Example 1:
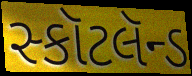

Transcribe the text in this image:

સ્કૉટલૅન્ડ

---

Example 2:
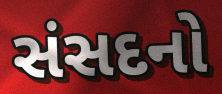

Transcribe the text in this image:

સંસદનો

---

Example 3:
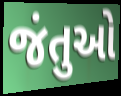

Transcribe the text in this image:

જંતુઓ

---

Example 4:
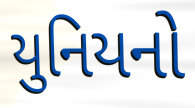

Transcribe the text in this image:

યુનિયનો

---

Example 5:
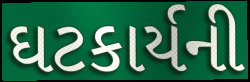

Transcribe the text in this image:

ઘટકાર્યની